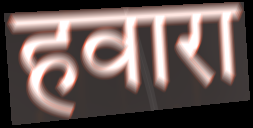
हवारा